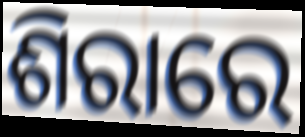
ଶିରାରେ